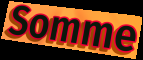
Somme